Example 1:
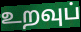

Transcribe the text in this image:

உறவுப்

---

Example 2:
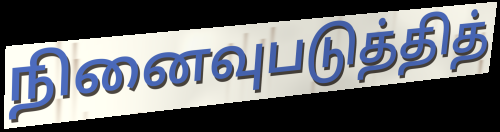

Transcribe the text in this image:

நினைவுபடுத்தித்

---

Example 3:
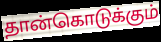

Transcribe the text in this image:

தான்கொடுக்கும்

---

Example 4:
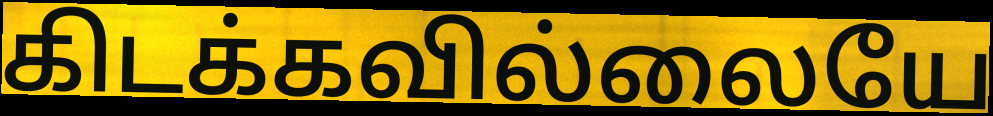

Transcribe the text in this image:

கிடக்கவில்லையே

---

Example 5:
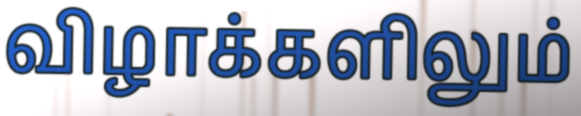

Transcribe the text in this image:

விழாக்களிலும்